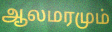
ஆலமரமும்